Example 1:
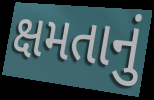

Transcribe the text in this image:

ક્ષમતાનું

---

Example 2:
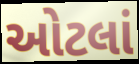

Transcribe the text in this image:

ઓટલાં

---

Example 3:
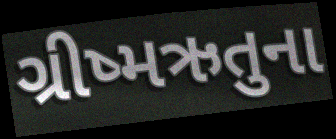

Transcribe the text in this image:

ગ્રીષ્મઋતુના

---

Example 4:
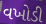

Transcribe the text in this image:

વખોડી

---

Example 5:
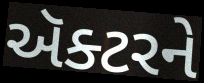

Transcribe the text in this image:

ઍક્ટરને